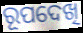
ରୂପଦେଖି